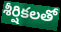
శీర్షికలతో